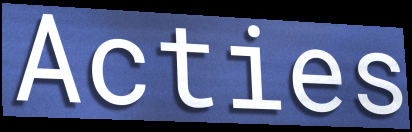
Acties